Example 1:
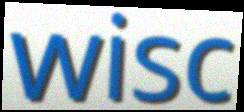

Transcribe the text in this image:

wisc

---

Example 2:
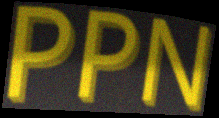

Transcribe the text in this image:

PPN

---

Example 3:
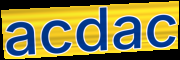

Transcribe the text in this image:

acdac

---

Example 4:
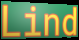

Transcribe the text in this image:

Lind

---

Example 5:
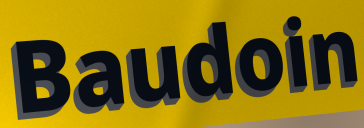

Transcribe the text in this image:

Baudoin